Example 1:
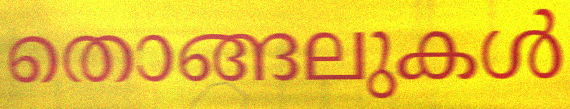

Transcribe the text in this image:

തൊങ്ങലുകൾ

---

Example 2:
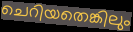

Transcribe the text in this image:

ചെറിയതെങ്കിലും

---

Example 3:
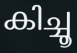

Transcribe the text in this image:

കിച്ചൂ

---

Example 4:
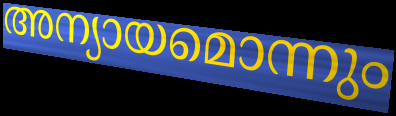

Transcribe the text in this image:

അന്യായമൊന്നും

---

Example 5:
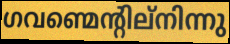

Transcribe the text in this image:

ഗവണ്മെന്റില്നിന്നു